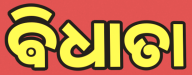
ଵିଧାତା